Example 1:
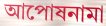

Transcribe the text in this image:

আপোষনামা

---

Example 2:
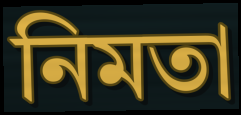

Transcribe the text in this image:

নিমতা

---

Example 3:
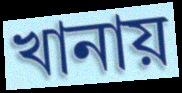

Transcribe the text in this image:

খানায়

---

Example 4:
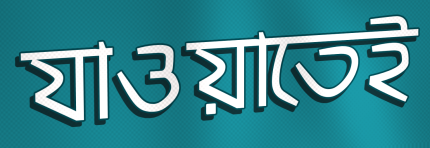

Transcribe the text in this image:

যাওয়াতেই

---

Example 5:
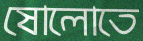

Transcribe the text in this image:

ষোলোতে